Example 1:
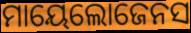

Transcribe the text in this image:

ମାୟେଲୋଜେନସ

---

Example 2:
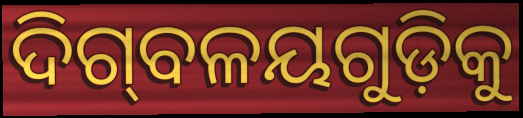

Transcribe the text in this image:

ଦିଗ୍‌ବଳୟଗୁଡ଼ିକୁ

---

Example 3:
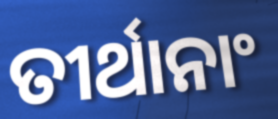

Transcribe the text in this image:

ତୀର୍ଥାନାଂ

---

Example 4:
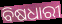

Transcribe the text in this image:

ବିଷଧାରୀ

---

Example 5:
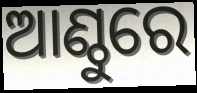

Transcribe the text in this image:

ଆଣ୍ଠୁରେ